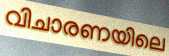
വിചാരണയിലെ